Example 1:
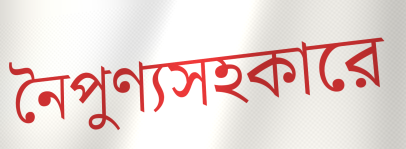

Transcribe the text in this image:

নৈপুণ্যসহকারে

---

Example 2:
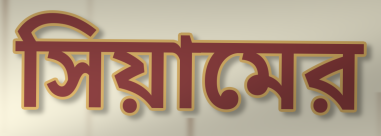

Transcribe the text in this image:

সিয়ামের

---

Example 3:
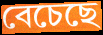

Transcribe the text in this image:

বেচেছে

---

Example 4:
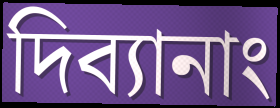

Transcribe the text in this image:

দিব্যানাং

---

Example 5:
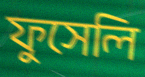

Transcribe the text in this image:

ফুসেলি